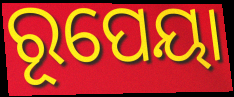
ରୂପେୟା